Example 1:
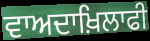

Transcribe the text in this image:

ਵਾਅਦਾਖ਼ਿਲਾਫੀ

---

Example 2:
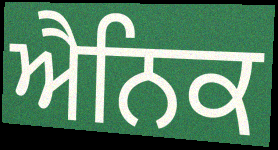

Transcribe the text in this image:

ਐਨਿਕ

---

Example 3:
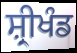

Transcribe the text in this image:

ਸ਼੍ਰੀਖੰਡ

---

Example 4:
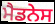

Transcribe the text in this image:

ਮੈਡਨੇਸ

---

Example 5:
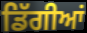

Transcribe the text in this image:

ਡਿੱਗੀਆਂ